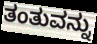
ತಂತುವನ್ನು